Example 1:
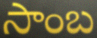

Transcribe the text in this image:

సాంబ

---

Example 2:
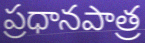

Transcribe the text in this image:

ప్రధానపాత్ర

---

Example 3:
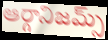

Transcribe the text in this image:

ఆర్గానిజమ్స్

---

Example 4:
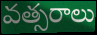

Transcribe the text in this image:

వత్సరాలు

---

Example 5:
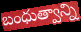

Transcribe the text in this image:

బంధుత్వాన్ని